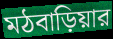
মঠবাড়িয়ার